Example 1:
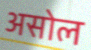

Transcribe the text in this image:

असोल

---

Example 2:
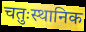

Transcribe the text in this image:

चतुःस्थानिक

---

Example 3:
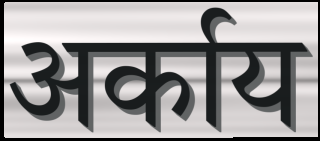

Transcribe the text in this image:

अर्काय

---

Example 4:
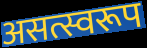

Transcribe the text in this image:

असत्स्वरूप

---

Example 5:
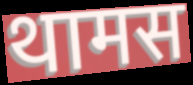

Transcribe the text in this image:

थामस